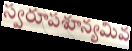
స్వరూపశూన్యమివ